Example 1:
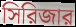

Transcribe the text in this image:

সিরিজার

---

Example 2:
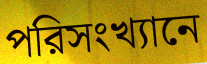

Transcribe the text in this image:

পরিসংখ্যানে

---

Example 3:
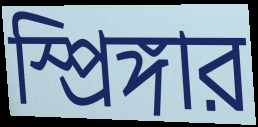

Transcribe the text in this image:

স্প্রিঙ্গার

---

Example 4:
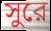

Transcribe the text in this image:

সুরে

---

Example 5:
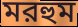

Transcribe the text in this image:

মরহুম